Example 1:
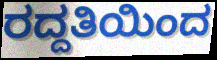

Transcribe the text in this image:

ರದ್ದತಿಯಿಂದ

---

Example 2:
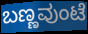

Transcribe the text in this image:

ಬಣ್ಣವುಂಟೆ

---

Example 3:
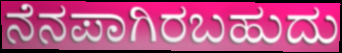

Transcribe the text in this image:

ನೆನಪಾಗಿರಬಹುದು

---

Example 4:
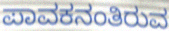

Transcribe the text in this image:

ಪಾವಕನಂತಿರುವ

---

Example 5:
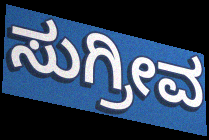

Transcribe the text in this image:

ಸುಗ್ರೀವ